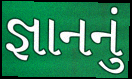
જ્ઞાનનું